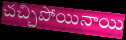
చచ్చిపోయినాయి